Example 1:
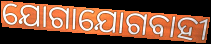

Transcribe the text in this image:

ଯୋଗାଯୋଗବାହୀ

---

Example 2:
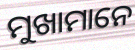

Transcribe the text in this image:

ମୁଖାମାନେ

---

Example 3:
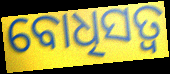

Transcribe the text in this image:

ବୋଧିସତ୍ବ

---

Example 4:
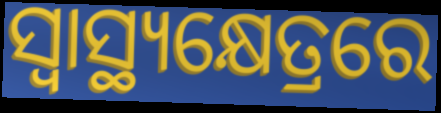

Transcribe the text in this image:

ସ୍ୱାସ୍ଥ୍ୟକ୍ଷେତ୍ରରେ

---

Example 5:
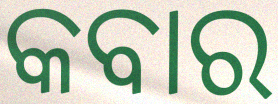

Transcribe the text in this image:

କବାର